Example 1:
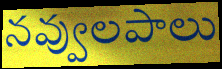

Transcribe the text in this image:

నవ్వులపాలు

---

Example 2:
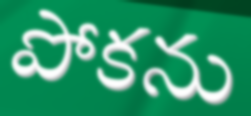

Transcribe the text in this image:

పోకను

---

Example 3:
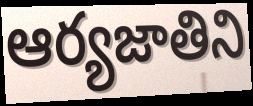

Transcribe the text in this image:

ఆర్యజాతిని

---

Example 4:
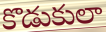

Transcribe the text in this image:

కొడుకులా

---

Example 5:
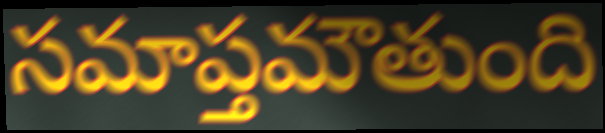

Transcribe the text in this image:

సమాప్తమౌతుంది